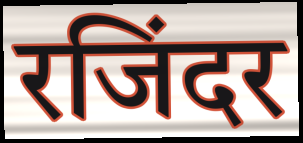
रजिंदर